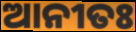
ଆନୀତଃ